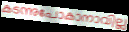
കടന്നുപോകാനാവില്ല